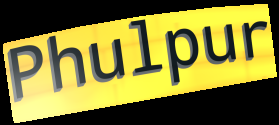
Phulpur